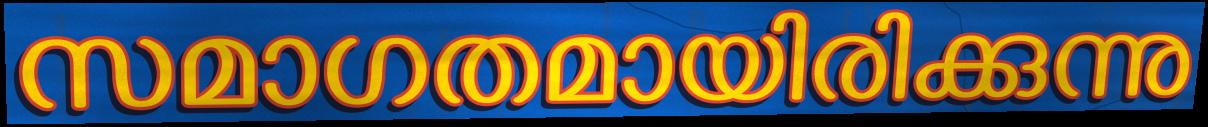
സമാഗതമായിരിക്കുന്നു